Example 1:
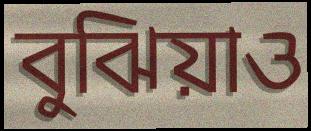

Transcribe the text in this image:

বুঝিয়াও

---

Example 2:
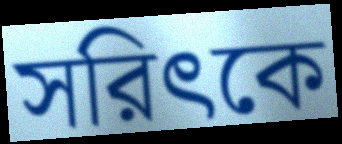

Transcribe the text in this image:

সরিৎকে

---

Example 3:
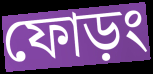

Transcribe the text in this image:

ফোড়ং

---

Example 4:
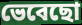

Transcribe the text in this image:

ভেবেছো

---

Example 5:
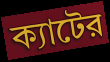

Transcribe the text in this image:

ক্যাটের